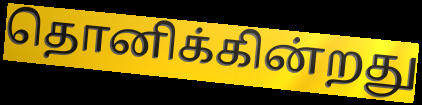
தொனிக்கின்றது